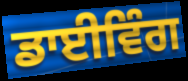
ਡਾਈਵਿੰਗ